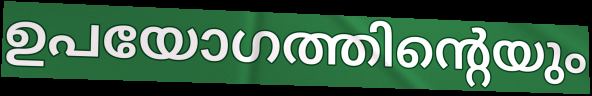
ഉപയോഗത്തിന്റെയും